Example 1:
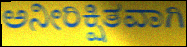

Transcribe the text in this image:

ಅನೀರಿಕ್ಷಿತವಾಗಿ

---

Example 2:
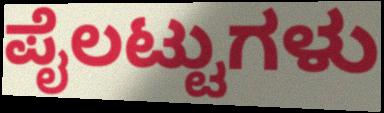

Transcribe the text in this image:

ಪೈಲಟ್ಟುಗಳು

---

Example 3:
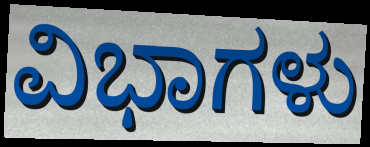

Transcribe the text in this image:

ವಿಭಾಗಳು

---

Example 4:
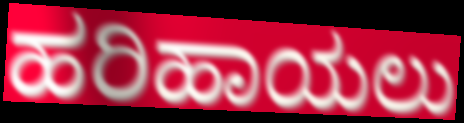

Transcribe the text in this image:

ಹರಿಹಾಯಲು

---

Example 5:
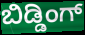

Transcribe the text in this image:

ಬಿಡ್ಡಿಂಗ್